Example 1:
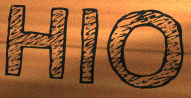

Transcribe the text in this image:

HIO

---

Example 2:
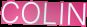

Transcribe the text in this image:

COLIN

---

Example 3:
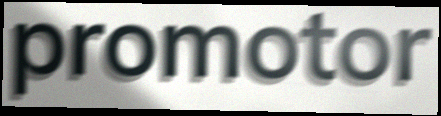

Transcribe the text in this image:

promotor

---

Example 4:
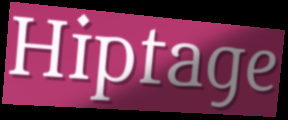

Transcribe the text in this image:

Hiptage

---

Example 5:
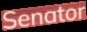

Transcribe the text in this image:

Senator